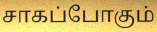
சாகப்போகும்